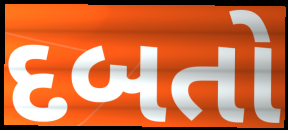
દબતો